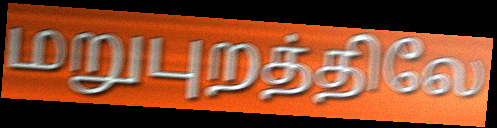
மறுபுறத்திலே